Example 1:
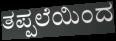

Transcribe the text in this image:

ತಪ್ಪಲೆಯಿಂದ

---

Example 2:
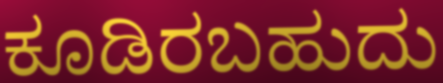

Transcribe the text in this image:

ಕೂಡಿರಬಹುದು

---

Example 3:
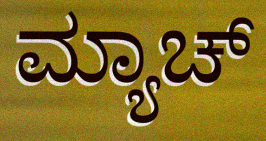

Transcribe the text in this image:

ಮ್ಯಾಚ್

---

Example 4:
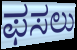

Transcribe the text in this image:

ಫಸಲು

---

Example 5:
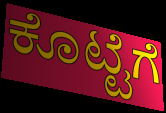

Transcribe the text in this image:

ಕೊಟ್ಟೆಗೆ